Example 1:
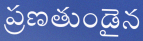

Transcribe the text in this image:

ప్రణతుండైన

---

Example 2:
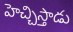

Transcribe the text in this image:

హెచ్చిస్తాడు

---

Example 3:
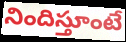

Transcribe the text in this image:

నిందిస్తూంటే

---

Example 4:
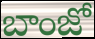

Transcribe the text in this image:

బాంజో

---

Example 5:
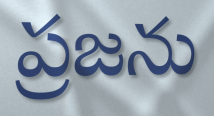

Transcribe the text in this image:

ప్రజను